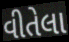
વીતેલા